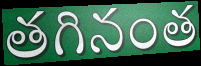
తగినంత